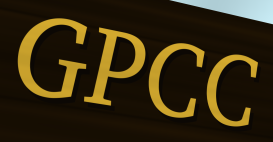
GPCC